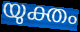
യുക്തം